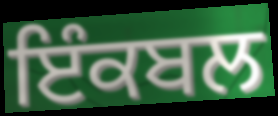
ਇੰਕਬਲ